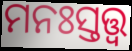
ମନଃସ୍ତତ୍ତ୍ଵ